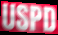
USPD